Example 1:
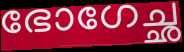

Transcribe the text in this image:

ഭോഗേച്ഛ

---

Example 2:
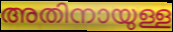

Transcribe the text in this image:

അതിനായുള്ള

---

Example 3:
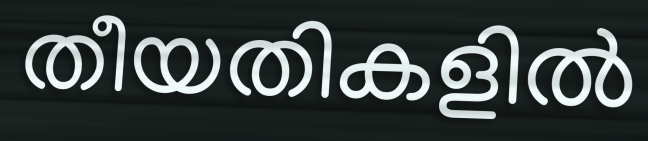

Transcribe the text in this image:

തീയതികളിൽ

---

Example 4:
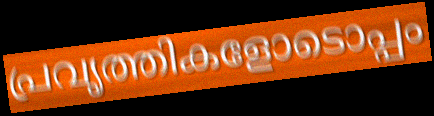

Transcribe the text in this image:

പ്രവൃത്തികളോടൊപ്പം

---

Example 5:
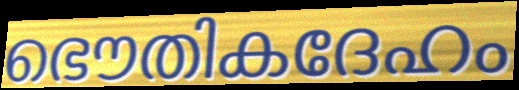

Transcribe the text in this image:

ഭൌതികദേഹം